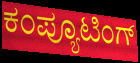
ಕಂಪ್ಯೂಟಿಂಗ್